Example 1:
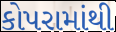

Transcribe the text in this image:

કોપરામાંથી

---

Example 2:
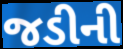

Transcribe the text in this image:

જડીની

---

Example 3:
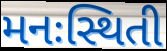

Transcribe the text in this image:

મનઃસ્થિતી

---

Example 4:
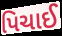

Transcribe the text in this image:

પિચાઈ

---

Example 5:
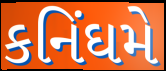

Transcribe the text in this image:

કનિંઘમે